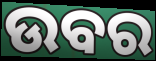
ଉବର